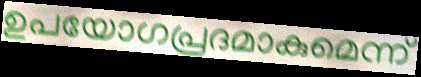
ഉപയോഗപ്രദമാകുമെന്ന്